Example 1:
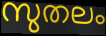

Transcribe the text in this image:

സുതലം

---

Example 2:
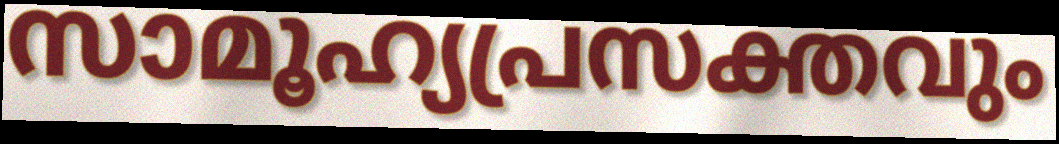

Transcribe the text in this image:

സാമൂഹ്യപ്രസക്തവും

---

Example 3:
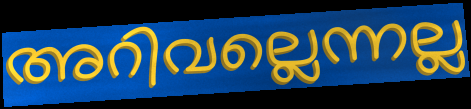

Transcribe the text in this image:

അറിവല്ലെന്നല്ല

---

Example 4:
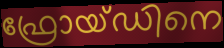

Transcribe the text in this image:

ഫ്രോയ്ഡിനെ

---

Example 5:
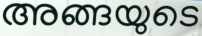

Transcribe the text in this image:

അങ്ങയുടെ